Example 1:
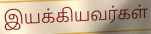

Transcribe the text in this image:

இயக்கியவர்கள்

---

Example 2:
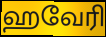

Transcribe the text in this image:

ஹவேரி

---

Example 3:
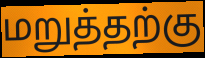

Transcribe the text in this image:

மறுத்தற்கு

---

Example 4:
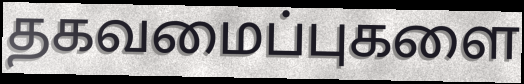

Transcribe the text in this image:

தகவமைப்புகளை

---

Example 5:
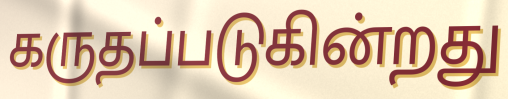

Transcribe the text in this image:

கருதப்படுகின்றது